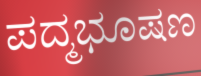
ಪದ್ಮಭೂಷಣ